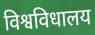
विश्वविधालय